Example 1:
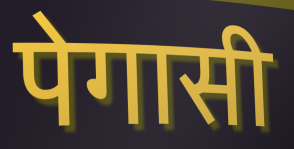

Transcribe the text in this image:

पेगासी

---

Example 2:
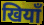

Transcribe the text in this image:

खियाँ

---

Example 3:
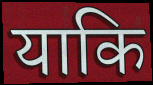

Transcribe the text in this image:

याकि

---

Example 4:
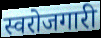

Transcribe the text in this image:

स्वरोजगारी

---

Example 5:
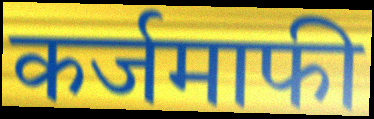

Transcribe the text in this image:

कर्जमाफी